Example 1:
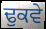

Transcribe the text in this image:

ਢੁਕਵੇ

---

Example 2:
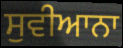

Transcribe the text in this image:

ਸੁਵੀਆਨਾ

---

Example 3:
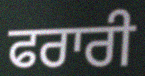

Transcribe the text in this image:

ਫਰਾਰੀ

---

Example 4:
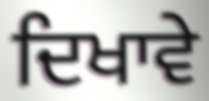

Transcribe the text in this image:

ਦਿਖਾਵੇ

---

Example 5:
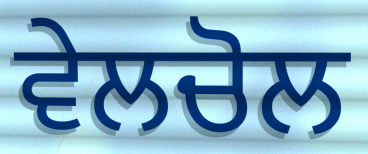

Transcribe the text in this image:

ਵੇਲਚੋਲ